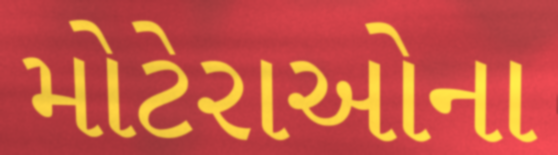
મોટેરાઓના